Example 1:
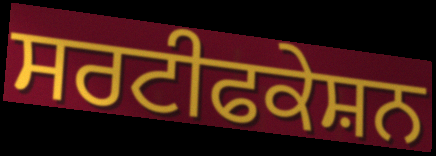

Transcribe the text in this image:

ਸਰਟੀਫਕੇਸ਼ਨ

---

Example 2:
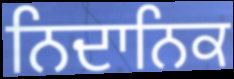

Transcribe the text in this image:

ਨਿਦਾਨਿਕ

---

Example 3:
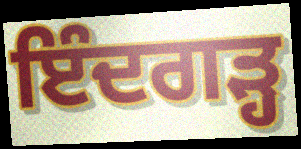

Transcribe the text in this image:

ਇੰਦਗੜ੍ਹ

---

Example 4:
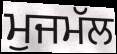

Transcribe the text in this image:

ਮੁਜਮੱਲ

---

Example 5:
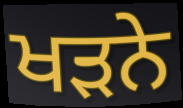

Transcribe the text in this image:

ਖੜਨੇ